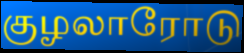
குழலாரோடு